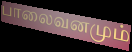
பாலைவனமும்